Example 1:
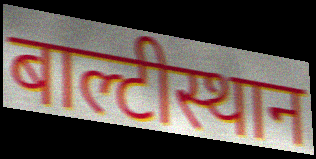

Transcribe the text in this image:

बाल्टीस्थान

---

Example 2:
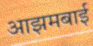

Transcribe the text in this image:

आझमबाई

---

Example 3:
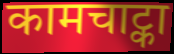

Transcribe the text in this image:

कामचाट्का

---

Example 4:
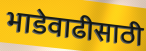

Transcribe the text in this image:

भाडेवाढीसाठी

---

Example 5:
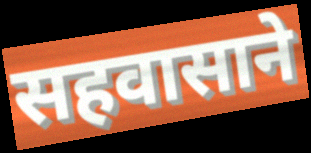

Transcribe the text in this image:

सहवासाने